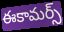
ఈకామర్స్